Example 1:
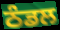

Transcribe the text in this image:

ਠੰਡਲ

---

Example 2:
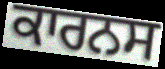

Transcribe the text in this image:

ਕਾਰਨਸ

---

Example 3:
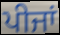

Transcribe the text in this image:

ਪੀਜਾਂ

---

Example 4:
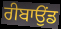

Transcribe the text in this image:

ਰੀਬਾਉਂਡ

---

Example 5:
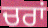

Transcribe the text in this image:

ਚਰਾਂ